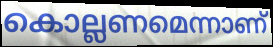
കൊല്ലണമെന്നാണ്